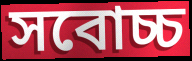
সবোচ্চ